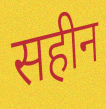
सहीन